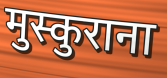
मुस्कुराना